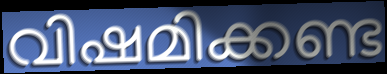
വിഷമിക്കണ്ട